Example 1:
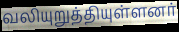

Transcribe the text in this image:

வலியுறுத்தியுள்ளனர்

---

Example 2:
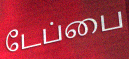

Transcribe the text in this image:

டேப்பை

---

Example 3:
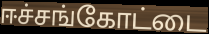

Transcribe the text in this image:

ஈச்சங்கோட்டை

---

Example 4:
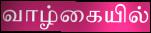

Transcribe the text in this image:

வாழ்கையில்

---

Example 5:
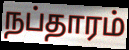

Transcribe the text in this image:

நப்தாரம்